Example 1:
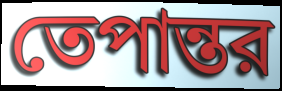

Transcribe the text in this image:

তেপান্তর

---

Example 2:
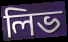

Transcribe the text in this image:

লিভ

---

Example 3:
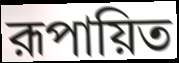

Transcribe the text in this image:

রূপায়িত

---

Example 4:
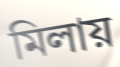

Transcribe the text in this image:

মিলায়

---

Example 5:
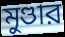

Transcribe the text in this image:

মুণ্ডার